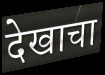
देखाचा